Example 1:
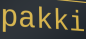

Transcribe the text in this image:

pakki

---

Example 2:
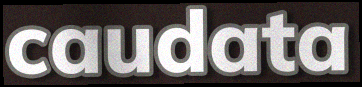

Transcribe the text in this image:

caudata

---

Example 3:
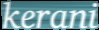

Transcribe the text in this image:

kerani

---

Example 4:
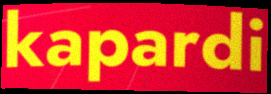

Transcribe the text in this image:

kapardi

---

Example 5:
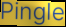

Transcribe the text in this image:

Pingle